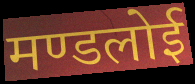
मण्डलोई